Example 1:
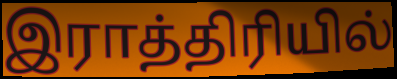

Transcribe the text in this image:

இராத்திரியில்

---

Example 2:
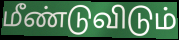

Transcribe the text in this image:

மீண்டுவிடும்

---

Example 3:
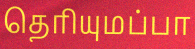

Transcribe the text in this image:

தெரியுமப்பா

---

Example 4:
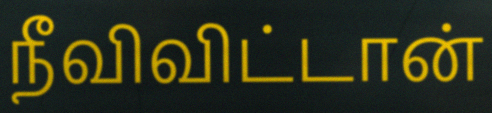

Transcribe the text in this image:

நீவிவிட்டான்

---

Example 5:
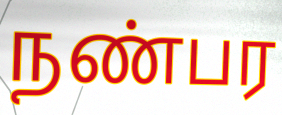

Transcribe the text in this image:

நண்பர